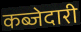
कब्जेदारी